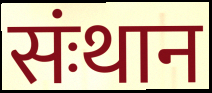
संःथान